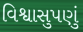
વિશ્વાસુપણું